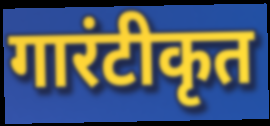
गारंटीकृत